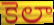
కెలా